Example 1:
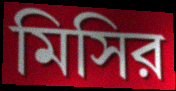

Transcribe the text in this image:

মিসির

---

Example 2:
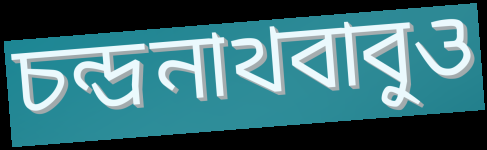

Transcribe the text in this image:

চন্দ্রনাথবাবুও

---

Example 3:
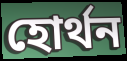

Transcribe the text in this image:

হোর্থন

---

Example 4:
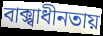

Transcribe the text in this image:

বাক্স্বাধীনতায়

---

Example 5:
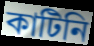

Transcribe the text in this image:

কাটিনি